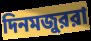
দিনমজুররা